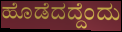
ಹೊಡೆದದ್ದೆಂದು